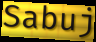
Sabuj